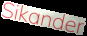
Sikander